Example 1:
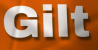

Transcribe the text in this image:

Gilt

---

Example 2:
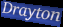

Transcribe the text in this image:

Drayton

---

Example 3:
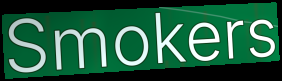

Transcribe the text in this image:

Smokers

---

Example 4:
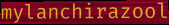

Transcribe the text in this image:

mylanchirazool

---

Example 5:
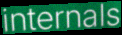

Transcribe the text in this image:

internals